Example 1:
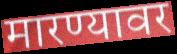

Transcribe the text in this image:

मारण्यावर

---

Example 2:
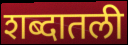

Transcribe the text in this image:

शब्दातली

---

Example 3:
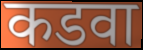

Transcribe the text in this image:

कडवा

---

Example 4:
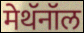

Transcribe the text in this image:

मेथॅनॉल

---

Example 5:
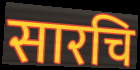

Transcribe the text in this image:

सारचि